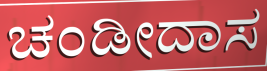
ಚಂಡೀದಾಸ